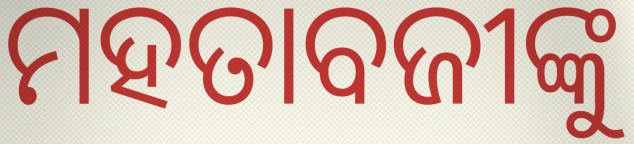
ମହତାବଜୀଙ୍କୁ